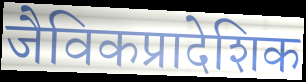
जैविकप्रादेशिक